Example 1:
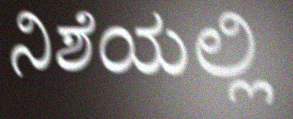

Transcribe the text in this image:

ನಿಶೆಯಲ್ಲಿ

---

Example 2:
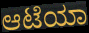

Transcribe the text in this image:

ಆಟೆಯಾ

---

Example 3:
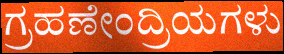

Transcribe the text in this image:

ಗ್ರಹಣೇಂದ್ರಿಯಗಳು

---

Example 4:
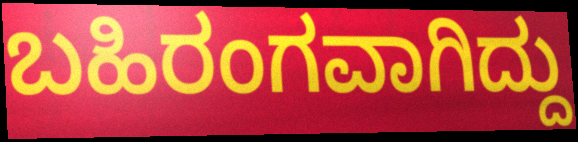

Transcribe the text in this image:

ಬಹಿರಂಗವಾಗಿದ್ದು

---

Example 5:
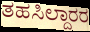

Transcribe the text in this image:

ತಹಸಿಲ್ದಾರರ